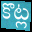
కొట్ల